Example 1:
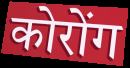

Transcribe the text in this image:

कोरोंग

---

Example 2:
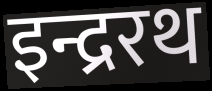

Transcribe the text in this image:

इन्द्ररथ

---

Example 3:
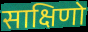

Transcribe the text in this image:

साक्षिणो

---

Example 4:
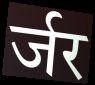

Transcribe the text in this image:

र्जर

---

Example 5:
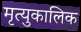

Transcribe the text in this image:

मृत्युकालिक